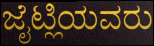
ಜೈಟ್ಲಿಯವರು